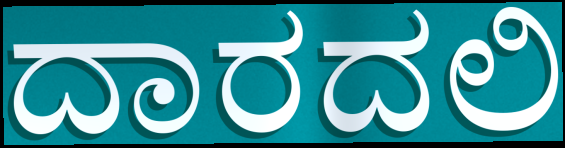
ದಾರದಲಿ